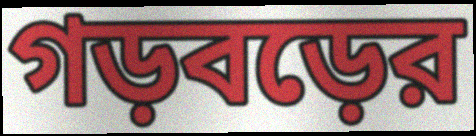
গড়বড়ের